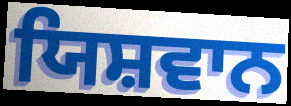
ਯਿਸ਼ਵਾਨ